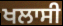
ਖਲਾਸੀ